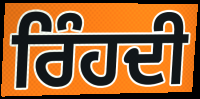
ਰਿੰਹਦੀ